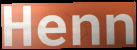
Henn